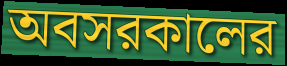
অবসরকালের